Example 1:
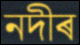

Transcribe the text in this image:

নদীৰ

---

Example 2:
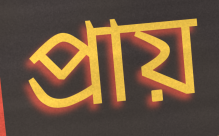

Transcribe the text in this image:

প্ৰায়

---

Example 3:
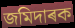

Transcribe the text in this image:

জমিদাৰক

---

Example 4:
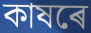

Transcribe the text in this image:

কাষৰে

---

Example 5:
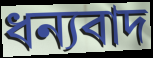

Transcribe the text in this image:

ধন্যবাদ